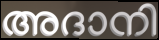
അദാനി